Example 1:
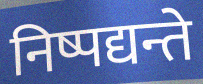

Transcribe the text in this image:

निष्पद्यन्ते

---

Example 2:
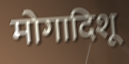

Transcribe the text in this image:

मोगादिशू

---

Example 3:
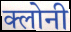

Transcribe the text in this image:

क्लोनी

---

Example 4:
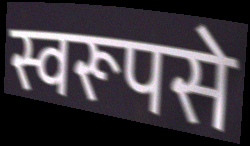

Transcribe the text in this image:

स्वरूपसे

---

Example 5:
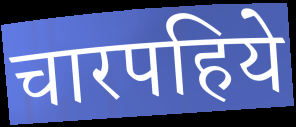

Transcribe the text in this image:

चारपहिये